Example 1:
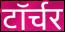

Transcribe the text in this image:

टॉर्चर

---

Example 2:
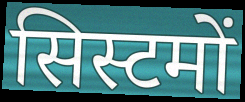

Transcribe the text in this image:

सिस्टमों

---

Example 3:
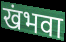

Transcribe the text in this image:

खंभवा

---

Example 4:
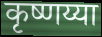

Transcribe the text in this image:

कृष्णय्या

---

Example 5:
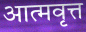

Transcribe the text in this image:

आत्मवृत्त